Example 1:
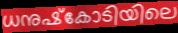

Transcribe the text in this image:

ധനുഷ്‌കോടിയിലെ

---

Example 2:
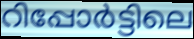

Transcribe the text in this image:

റിപ്പോർട്ടിലെ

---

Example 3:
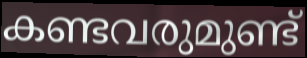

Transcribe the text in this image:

കണ്ടവരുമുണ്ട്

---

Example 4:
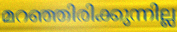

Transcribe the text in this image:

മറഞ്ഞിരിക്കുന്നില്ല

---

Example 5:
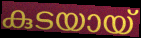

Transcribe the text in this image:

കുടയായ്